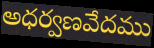
అధర్వణవేదము